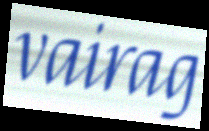
vairag